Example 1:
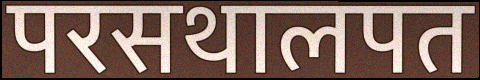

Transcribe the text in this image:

परसथालपत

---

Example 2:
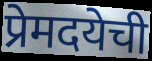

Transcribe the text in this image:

प्रेमदयेची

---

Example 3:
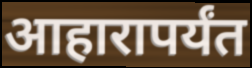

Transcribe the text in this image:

आहारापर्यंत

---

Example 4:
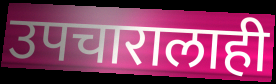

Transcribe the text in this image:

उपचारालाही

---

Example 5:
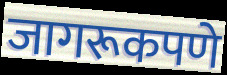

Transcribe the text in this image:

जागरूकपणे